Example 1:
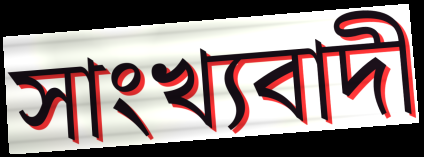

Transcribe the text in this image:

সাংখ্যবাদী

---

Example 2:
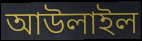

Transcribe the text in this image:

আউলাইল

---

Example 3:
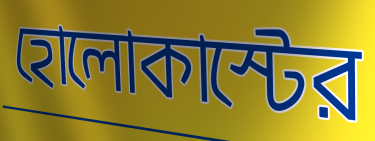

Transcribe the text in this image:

হোলোকাস্টের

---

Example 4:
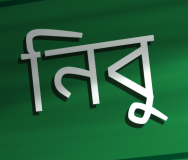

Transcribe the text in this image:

নিবু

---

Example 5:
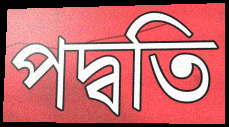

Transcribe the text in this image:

পদ্বতি